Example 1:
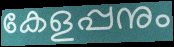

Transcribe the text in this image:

കേളപ്പനും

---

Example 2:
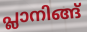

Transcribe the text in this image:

പ്ലാനിങ്ങ്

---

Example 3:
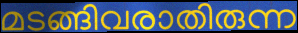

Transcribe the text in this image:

മടങ്ങിവരാതിരുന്ന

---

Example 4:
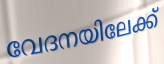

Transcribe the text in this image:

വേദനയിലേക്ക്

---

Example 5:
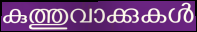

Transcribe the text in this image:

കുത്തുവാക്കുകൾ